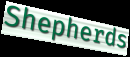
Shepherds